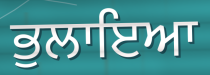
ਭੁਲਾਇਆ